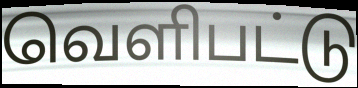
வெளிபட்டு